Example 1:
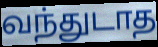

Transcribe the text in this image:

வந்துடாத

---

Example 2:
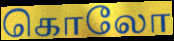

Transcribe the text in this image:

கொலோ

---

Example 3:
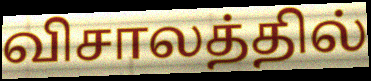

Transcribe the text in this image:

விசாலத்தில்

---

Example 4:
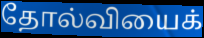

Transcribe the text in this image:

தோல்வியைக்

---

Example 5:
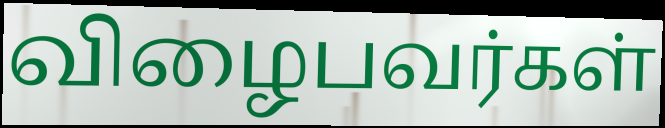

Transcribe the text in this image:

விழைபவர்கள்